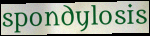
spondylosis